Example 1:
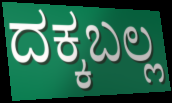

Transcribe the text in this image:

ದಕ್ಕಬಲ್ಲ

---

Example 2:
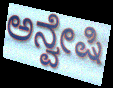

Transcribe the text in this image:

ಅನ್ವೇಷಿ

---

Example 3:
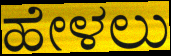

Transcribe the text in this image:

ಹೇಳಲು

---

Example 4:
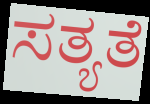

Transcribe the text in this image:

ಸತ್ಯತೆ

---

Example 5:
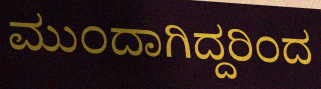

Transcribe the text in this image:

ಮುಂದಾಗಿದ್ದರಿಂದ